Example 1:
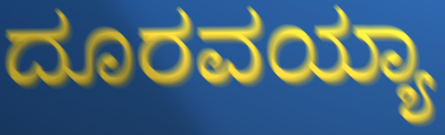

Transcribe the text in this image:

ದೂರವಯ್ಯಾ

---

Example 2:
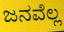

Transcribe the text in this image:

ಜನವೆಲ್ಲ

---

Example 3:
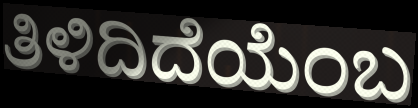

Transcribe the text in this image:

ತಿಳಿದಿದೆಯೆಂಬ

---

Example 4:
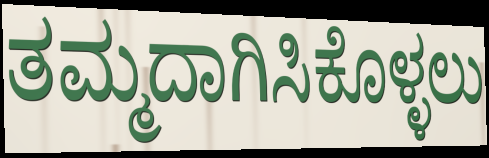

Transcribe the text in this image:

ತಮ್ಮದಾಗಿಸಿಕೊಳ್ಳಲು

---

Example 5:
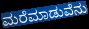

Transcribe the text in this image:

ಮರೆಮಾಡುವೆನು